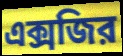
এক্সজির